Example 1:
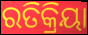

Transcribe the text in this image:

ରତିକ୍ରିୟା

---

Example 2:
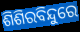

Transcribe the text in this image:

ଶିଶିରବିନ୍ଦୁରେ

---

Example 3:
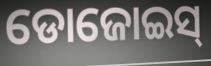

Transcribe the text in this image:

ଡୋଜୋଇସ୍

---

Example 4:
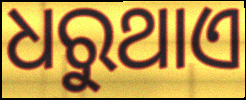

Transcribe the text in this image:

ଧରୁଥାଏ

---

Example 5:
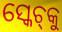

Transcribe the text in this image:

ସ୍କେଚ୍‌କୁ